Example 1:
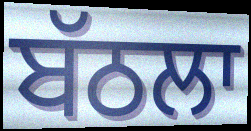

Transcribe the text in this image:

ਬੱਠਲਾ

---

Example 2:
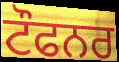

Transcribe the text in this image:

ਟੌਫਨਰ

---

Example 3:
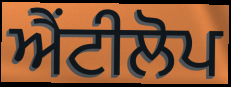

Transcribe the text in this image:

ਐਂਟੀਲੋਪ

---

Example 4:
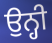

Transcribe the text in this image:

ਉਨ੍ਹੀ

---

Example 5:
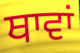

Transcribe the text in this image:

ਥਾਵਾਂ